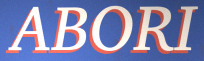
ABORI